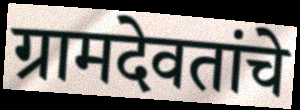
ग्रामदेवतांचे